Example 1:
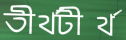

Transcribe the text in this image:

তীর্থটীর্থ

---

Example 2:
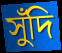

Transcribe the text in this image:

সুঁদি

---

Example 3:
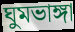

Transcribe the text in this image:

ঘুমভাঙ্গা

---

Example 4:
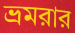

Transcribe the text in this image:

ভ্রমরার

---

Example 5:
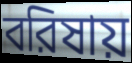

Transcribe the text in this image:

বরিষায়